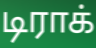
டிராக்